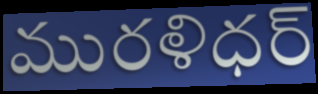
మురళిధర్